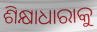
ଶିକ୍ଷାଧାରାକୁ